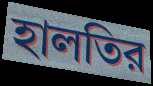
হালতির